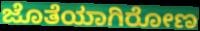
ಜೊತೆಯಾಗಿರೋಣ